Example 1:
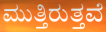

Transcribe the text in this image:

ಮುತ್ತಿರುತ್ತವೆ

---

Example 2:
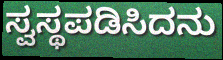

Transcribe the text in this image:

ಸ್ವಸ್ಥಪಡಿಸಿದನು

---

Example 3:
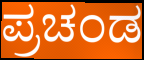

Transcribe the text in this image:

ಪ್ರಚಂಡ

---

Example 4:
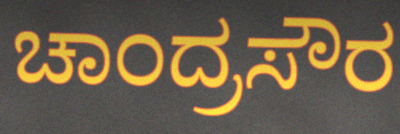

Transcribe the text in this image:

ಚಾಂದ್ರಸೌರ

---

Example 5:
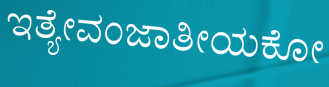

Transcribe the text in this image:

ಇತ್ಯೇವಂಜಾತೀಯಕೋ